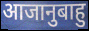
आजानुबाहु